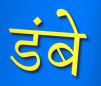
डंबे